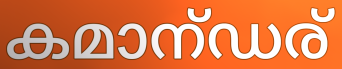
കമാന്ഡര്